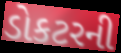
ડોકટરની